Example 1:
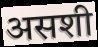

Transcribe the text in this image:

असशी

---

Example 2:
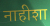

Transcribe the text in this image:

नाहीशा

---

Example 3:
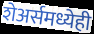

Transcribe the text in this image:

शेअर्समध्येही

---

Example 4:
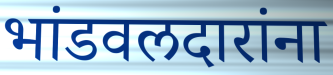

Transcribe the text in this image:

भांडवलदारांना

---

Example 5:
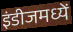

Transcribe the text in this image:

इंडीजमध्यें